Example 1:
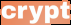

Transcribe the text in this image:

crypt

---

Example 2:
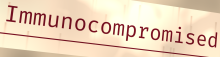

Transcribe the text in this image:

Immunocompromised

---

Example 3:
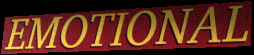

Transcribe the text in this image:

EMOTIONAL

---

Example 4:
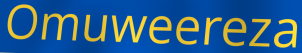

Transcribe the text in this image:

Omuweereza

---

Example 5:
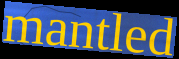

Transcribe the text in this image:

mantled